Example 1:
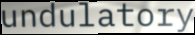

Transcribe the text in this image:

undulatory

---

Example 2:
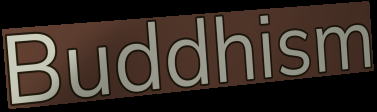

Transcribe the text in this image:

Buddhism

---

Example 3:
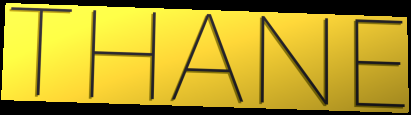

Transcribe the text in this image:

THANE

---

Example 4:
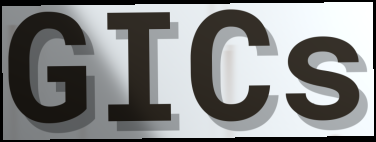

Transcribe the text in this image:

GICs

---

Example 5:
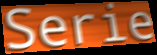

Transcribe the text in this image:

Serie